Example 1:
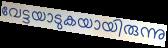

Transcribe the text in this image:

വേട്ടയാടുകയായിരുന്നു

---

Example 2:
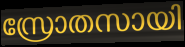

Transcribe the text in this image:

സ്രോതസായി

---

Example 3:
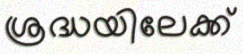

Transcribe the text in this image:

ശ്രദ്ധയിലേക്ക്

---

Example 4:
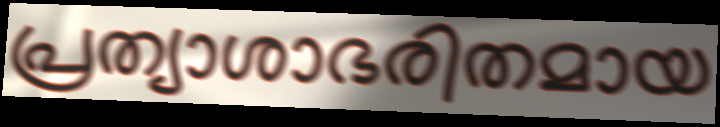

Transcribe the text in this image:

പ്രത്യാശാഭരിതമായ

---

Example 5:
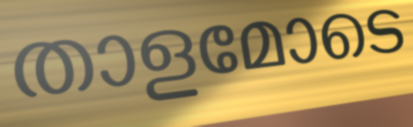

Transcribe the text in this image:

താളമോടെ